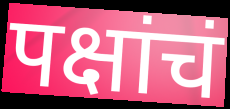
पक्षांचं